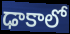
ఢాకాలో